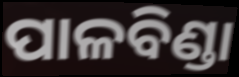
ପାଳବିଣ୍ଡା